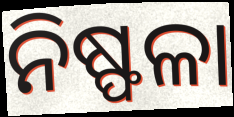
ନିଷ୍ଫଳା